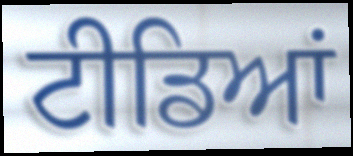
ਟੀਡਿਆਂ